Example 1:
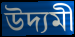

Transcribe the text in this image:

উদ্যমী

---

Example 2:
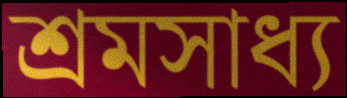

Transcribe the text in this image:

শ্ৰমসাধ্য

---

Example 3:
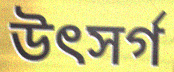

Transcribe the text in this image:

উৎসৰ্গ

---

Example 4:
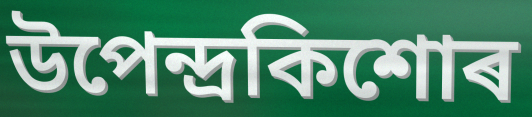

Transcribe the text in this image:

উপেন্দ্ৰকিশোৰ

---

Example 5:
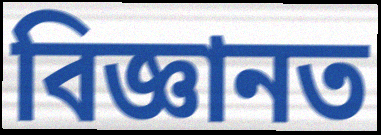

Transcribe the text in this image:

বিজ্ঞানত